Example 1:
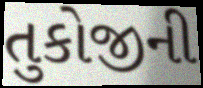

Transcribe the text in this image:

તુકોજીની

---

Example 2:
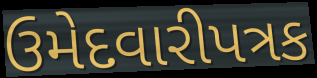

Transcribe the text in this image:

ઉમેદવારીપત્રક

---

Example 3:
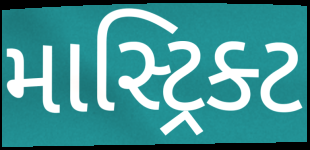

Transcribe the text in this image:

માસ્ટ્રિક્ટ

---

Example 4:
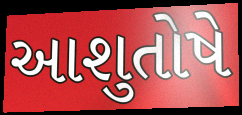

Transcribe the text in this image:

આશુતોષે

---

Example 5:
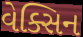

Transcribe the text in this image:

વેક્સિન